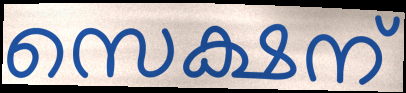
സെക്ഷന്